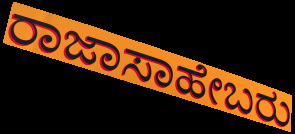
ರಾಜಾಸಾಹೇಬರು